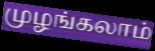
முழங்கலாம்